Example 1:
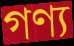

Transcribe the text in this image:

গণ্য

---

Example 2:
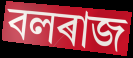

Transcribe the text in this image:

বলৰাজ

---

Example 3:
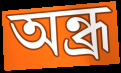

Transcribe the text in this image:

অন্ধ্ৰ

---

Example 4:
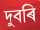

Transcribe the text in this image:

দুবৰি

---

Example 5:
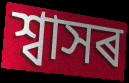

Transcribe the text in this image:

শ্বাসৰ